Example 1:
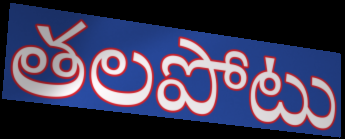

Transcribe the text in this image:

తలపోటు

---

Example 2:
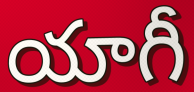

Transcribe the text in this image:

యాగీ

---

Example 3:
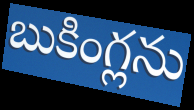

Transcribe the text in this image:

బుకింగ్లను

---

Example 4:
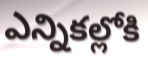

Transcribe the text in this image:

ఎన్నికల్లోకి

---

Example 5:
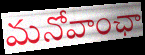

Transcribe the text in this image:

మనోవాంఛా